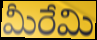
మీరేమి